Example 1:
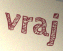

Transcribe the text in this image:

vraj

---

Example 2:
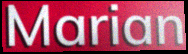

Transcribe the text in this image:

Marian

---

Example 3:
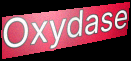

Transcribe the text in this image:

Oxydase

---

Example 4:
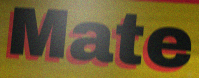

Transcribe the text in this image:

Mate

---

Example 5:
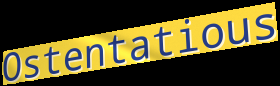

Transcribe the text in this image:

Ostentatious